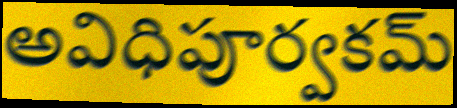
అవిధిపూర్వకమ్